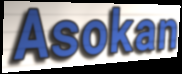
Asokan